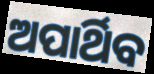
ଅପାର୍ଥିବ